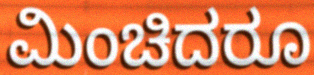
ಮಿಂಚಿದರೂ